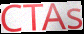
CTAs